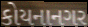
કોયનાનગર